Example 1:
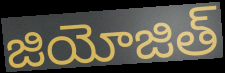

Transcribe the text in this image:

జియోజిత్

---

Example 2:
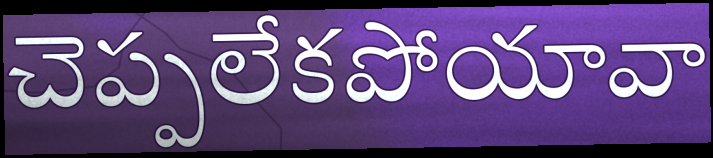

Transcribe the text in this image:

చెప్పలేకపోయావా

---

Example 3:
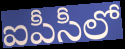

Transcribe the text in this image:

ఐపీసీలో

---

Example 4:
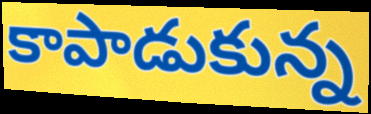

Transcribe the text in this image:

కాపాడుకున్న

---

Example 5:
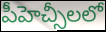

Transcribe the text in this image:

పీహెచ్సీలలో